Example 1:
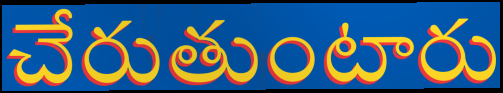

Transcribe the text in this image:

చేరుతుంటారు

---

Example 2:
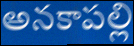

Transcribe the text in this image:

అనకాపల్లి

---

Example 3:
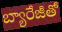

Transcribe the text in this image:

బ్యారేజీతో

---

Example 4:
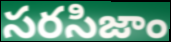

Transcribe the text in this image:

సరసిజాం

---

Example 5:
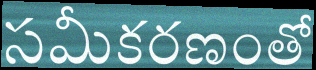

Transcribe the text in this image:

సమీకరణంతో